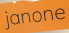
janone